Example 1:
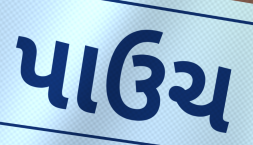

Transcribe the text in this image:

પાઉચ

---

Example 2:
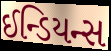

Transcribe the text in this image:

ઈન્ડિયન્સ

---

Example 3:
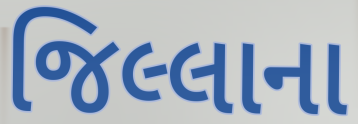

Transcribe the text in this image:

જિલ્લાના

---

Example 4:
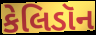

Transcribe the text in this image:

કેલિડૉન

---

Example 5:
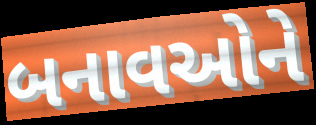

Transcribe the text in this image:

બનાવઓને